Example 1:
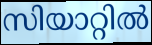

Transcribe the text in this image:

സിയാറ്റിൽ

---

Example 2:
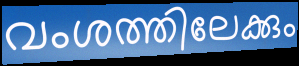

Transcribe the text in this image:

വംശത്തിലേക്കും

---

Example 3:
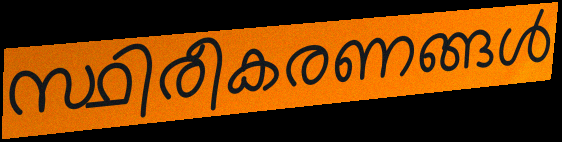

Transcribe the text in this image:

സ്ഥിരീകരണങ്ങൾ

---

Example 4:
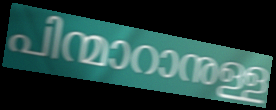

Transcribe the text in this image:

പിന്മാറാനുള്ള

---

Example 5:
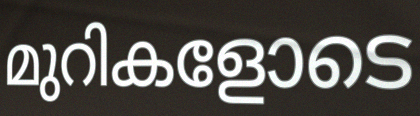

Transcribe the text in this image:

മുറികളോടെ